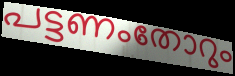
പട്ടണംതോറും